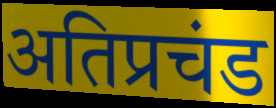
अतिप्रचंड